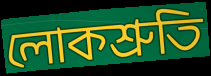
লোকশ্ৰুতি